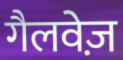
गैलवेज़